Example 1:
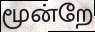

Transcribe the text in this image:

மூன்றே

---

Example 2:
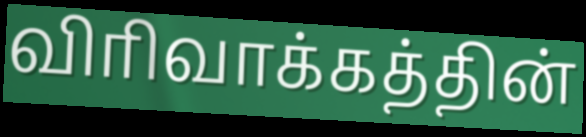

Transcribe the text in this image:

விரிவாக்கத்தின்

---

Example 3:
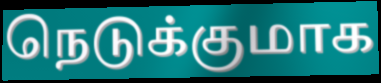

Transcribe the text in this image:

நெடுக்குமாக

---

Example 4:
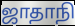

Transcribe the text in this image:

ஜாதாநி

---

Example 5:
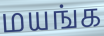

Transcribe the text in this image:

மயங்க